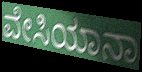
ವೇಸಿಯಾನಾ